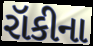
રૉકીના